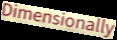
Dimensionally